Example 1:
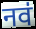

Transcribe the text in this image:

नव॑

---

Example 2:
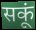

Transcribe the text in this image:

सकूं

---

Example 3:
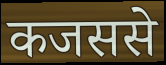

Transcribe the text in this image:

कजससे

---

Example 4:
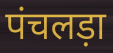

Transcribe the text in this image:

पंचलड़ा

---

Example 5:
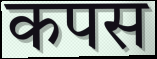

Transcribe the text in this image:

कपस